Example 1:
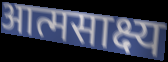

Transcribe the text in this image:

आत्मसाक्ष्य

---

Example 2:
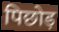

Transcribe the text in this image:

पिछोड़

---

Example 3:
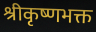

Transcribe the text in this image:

श्रीकृष्णभक्त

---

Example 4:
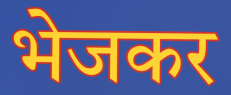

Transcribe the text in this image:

भेजकर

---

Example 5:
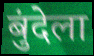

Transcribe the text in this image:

बुंदेला